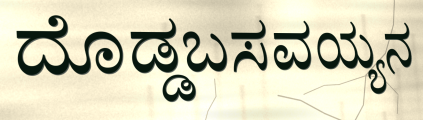
ದೊಡ್ಡಬಸವಯ್ಯನ